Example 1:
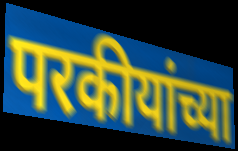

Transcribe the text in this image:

परकीयांच्या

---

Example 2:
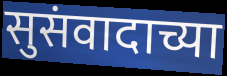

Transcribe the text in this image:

सुसंवादाच्या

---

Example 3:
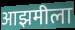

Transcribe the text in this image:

आझमीला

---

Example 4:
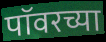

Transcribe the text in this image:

पॉवरच्या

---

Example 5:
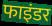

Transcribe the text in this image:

फाइंडर